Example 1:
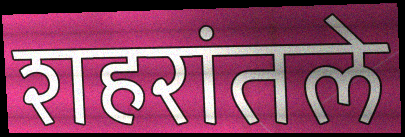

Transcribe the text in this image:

शहरांतले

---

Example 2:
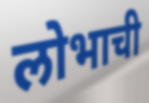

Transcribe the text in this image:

लोभाची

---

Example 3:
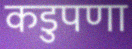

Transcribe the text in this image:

कडुपणा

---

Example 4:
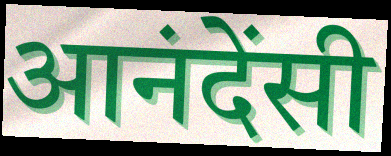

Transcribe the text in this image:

आनंदेंसी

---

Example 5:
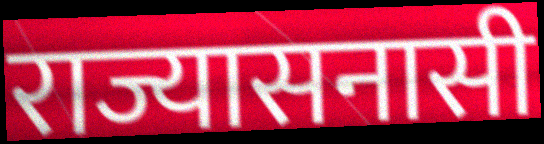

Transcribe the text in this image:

राज्यासनासी